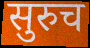
सुरुच